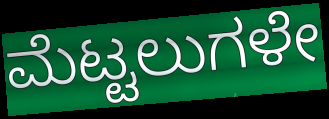
ಮೆಟ್ಟಲುಗಳೇ